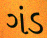
ગંડ